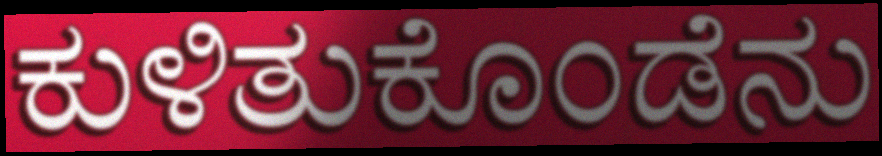
ಕುಳಿತುಕೊಂಡೆನು